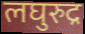
लघुरुद्र